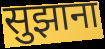
सुझाना